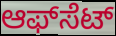
ಆಫ್‍ಸೆಟ್